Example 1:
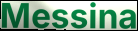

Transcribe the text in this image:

Messina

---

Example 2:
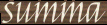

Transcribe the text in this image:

summa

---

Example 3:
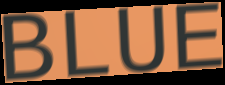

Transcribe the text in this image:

BLUE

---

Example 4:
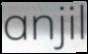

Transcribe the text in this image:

anjil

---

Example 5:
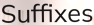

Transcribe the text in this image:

Suffixes